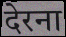
देरना